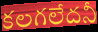
కలగలేదనీ